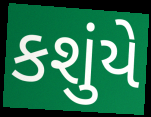
કશુંયે